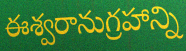
ఈశ్వరానుగ్రహాన్ని